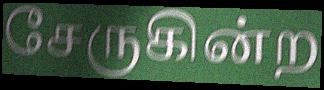
சேருகின்ற